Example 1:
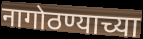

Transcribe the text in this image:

नागोठण्याच्या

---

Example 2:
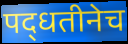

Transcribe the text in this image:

पद्धतीनेच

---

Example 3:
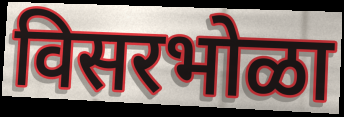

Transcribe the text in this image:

विसरभोळा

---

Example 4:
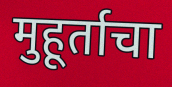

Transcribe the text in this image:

मुहूर्ताचा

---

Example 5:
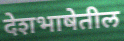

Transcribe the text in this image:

देशभाषेतील